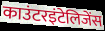
काउंटरइंटेलिजेंस